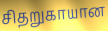
சிதறுகாயான